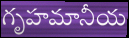
గృహమానీయ